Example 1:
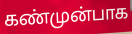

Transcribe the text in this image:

கண்முன்பாக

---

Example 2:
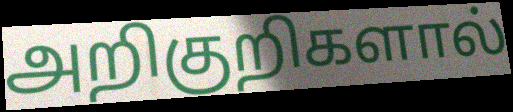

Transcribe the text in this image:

அறிகுறிகளால்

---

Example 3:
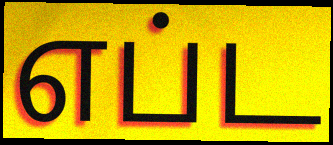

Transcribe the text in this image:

எப்ட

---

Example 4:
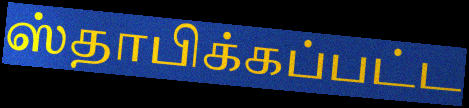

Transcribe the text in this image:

ஸ்தாபிக்கப்பட்ட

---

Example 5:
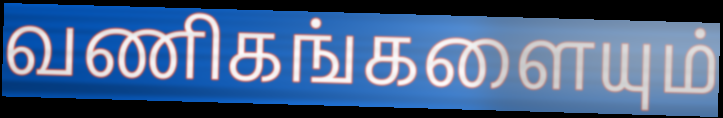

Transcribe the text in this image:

வணிகங்களையும்